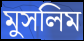
মুসলিম